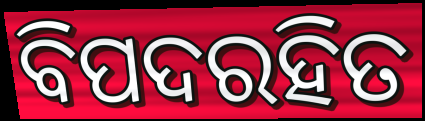
ବିପଦରହିତ